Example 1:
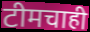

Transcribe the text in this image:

टीमचाही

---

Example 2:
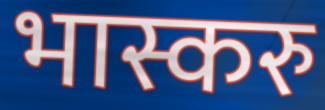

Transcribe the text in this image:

भास्करु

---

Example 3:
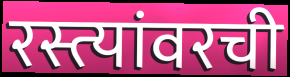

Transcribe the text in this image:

रस्त्यांवरची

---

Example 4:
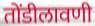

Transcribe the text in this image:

तोंडीलावणी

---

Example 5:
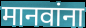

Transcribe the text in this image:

मानवांना